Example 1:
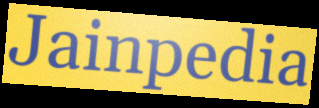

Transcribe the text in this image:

Jainpedia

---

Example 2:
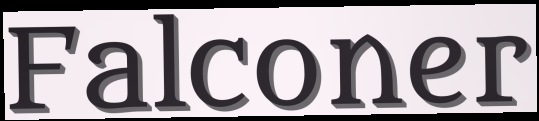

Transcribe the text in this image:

Falconer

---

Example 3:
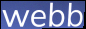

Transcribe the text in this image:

webb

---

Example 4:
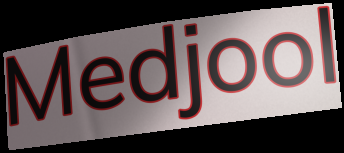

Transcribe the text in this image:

Medjool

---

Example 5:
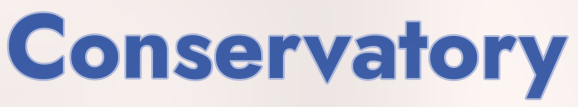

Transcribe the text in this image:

Conservatory